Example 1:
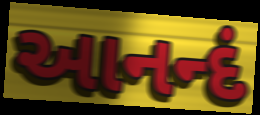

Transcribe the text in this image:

આનન્દં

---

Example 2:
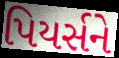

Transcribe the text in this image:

પિયર્સને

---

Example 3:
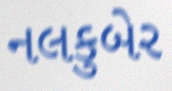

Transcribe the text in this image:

નલકુબેર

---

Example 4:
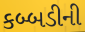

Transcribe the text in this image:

કબ્બડીની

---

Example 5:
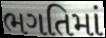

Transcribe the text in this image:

ભગતિમાં